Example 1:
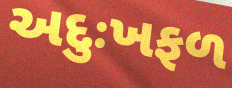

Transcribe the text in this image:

અદુઃખફળ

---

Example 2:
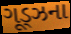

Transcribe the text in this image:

ગૂડ્ઝના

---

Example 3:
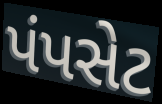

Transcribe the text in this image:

પંપસેટ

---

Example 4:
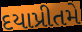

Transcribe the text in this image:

દયાપ્રીતમે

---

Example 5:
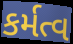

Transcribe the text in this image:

કર્મત્વ